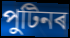
পুটিনৰ